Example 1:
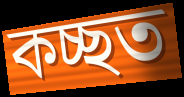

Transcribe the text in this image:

কচ্ছত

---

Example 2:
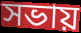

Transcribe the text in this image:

সভায়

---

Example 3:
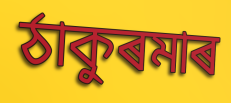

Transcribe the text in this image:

ঠাকুৰমাৰ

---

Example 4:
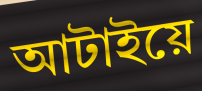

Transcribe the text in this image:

আটাইয়ে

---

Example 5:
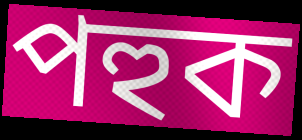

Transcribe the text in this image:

পহুক